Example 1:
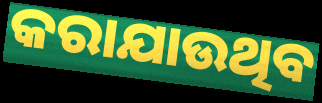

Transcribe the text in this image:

କରାଯାଉଥିବ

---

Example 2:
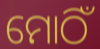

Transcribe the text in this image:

ମୋଠିଁ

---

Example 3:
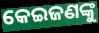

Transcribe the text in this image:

କେଇଜଣଙ୍କୁ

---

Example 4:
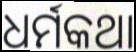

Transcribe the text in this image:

ଧର୍ମକଥା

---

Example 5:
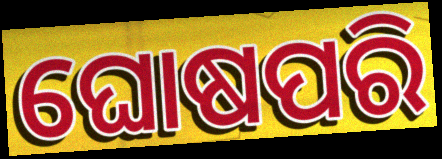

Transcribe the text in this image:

ଘୋଷପରି